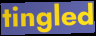
tingled